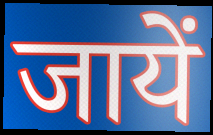
जायें